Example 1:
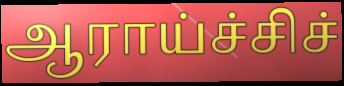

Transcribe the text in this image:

ஆராய்ச்சிச்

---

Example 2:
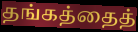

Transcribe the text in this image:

தங்கத்தைத்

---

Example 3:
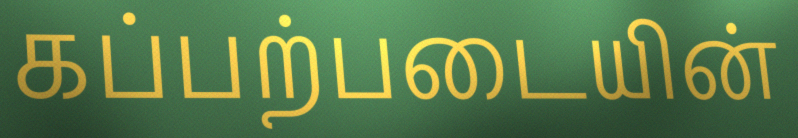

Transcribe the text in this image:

கப்பற்படையின்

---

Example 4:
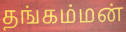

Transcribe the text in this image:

தங்கம்மன்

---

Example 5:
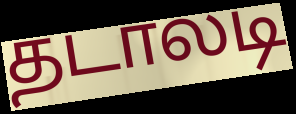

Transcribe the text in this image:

தடாலடி